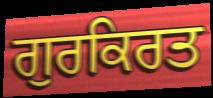
ਗੁਰਕਿਰਤ